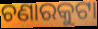
ଚଣାରକୁଟା